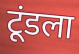
टूंडला